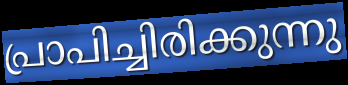
പ്രാപിച്ചിരിക്കുന്നു